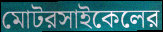
মোটরসাইকেলের